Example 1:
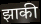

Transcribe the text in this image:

झाकी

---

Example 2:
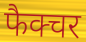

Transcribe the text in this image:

फैक्चर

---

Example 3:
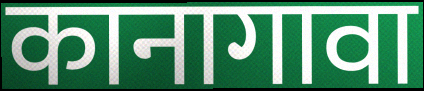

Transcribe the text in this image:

कानागावा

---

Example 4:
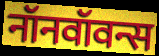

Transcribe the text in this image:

नॉनवॉवन्स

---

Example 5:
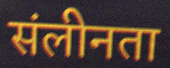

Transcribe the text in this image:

संलीनता